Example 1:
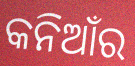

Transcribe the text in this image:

କନିଆଁର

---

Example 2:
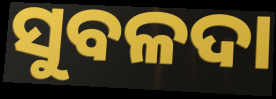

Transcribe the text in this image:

ସୁବଳଦା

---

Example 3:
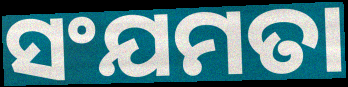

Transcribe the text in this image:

ସଂଯମତା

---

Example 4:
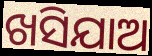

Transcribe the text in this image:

ଖସିଯାଅ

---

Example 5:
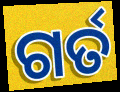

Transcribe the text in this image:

ଗର୍ତ